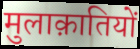
मुलाक़ातियों